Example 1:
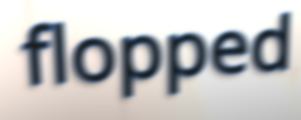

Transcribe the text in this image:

flopped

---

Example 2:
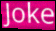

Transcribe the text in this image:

Joke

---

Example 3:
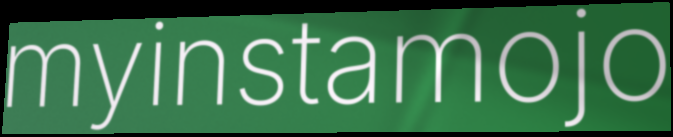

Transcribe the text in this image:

myinstamojo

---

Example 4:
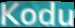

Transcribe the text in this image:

Kodu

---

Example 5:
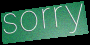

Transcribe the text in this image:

sorry